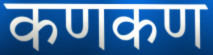
कणकण